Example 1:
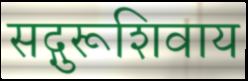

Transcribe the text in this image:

सद्गुरूशिवाय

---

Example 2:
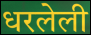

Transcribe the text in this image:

धरलेली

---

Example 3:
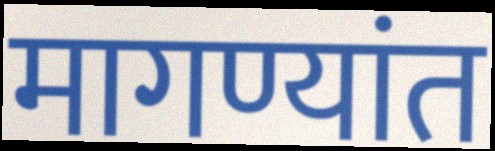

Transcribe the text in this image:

मागण्यांत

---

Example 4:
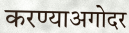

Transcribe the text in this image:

करण्याअगोदर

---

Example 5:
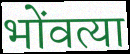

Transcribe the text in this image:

भोंवत्या